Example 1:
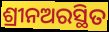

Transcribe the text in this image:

ଶ୍ରୀନଅରସ୍ଥିତ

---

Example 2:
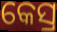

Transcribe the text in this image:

କେସ୍ର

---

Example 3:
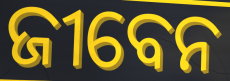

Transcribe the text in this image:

ଜୀବେନ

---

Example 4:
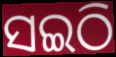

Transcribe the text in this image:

ସଇଠି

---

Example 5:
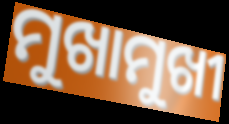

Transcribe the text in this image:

ମୁଖାମୁଖୀ